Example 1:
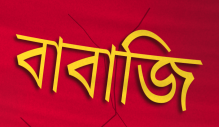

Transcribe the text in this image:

বাবাজি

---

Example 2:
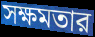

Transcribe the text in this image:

সক্ষমতার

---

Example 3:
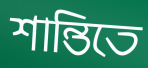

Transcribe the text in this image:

শান্তিতে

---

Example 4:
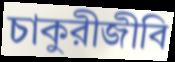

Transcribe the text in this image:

চাকুরীজীবি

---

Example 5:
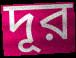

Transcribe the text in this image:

দূর